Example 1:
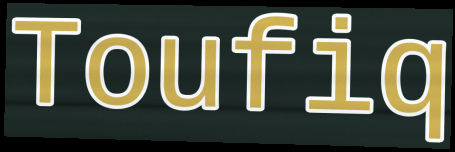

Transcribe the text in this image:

Toufiq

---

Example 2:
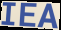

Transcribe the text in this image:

IEA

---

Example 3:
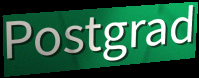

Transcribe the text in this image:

Postgrad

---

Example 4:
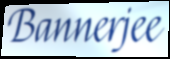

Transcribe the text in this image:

Bannerjee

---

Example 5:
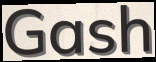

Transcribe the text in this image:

Gash